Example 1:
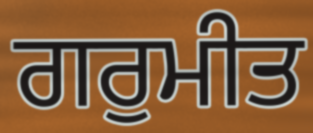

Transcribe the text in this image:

ਗਰੁਮੀਤ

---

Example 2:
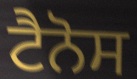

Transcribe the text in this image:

ਟੈਨੋਸ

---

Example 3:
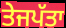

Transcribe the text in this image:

ਤੇਜਪੱਤਾ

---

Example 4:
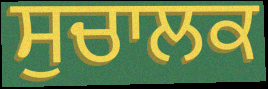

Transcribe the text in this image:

ਸੁਚਾਲਕ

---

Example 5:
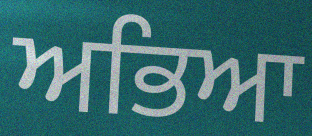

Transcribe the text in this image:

ਅਭਿਆ